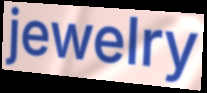
jewelry